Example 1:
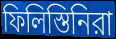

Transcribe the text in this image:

ফিলিস্তিনিরা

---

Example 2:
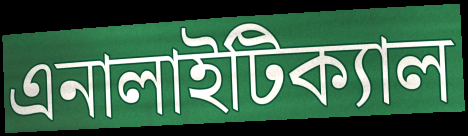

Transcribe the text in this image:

এনালাইটিক্যাল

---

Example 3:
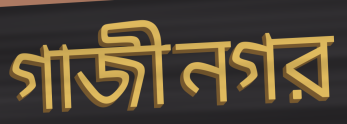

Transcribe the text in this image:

গাজীনগর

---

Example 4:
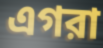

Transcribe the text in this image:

এগরা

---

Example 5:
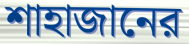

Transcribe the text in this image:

শাহাজানের